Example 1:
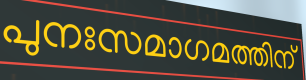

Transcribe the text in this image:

പുനഃസമാഗമത്തിന്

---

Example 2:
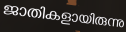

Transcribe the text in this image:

ജാതികളായിരുന്നു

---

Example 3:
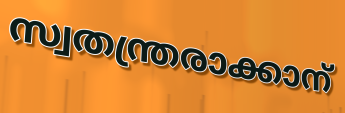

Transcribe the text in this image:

സ്വതന്ത്രരാക്കാന്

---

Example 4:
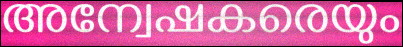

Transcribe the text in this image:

അന്വേഷകരെയും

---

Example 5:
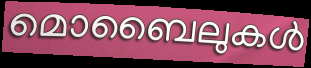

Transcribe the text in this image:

മൊബൈലുകൾ